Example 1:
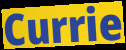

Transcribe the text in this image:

Currie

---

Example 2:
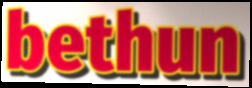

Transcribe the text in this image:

bethun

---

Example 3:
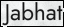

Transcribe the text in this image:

Jabhat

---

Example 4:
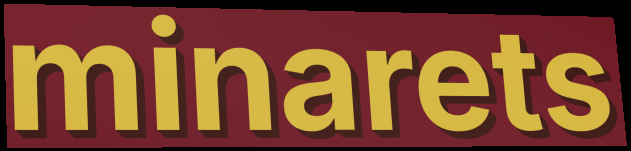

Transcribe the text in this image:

minarets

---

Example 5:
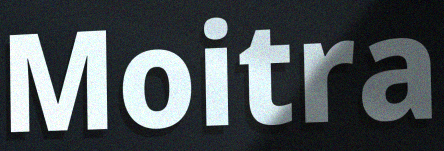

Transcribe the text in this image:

Moitra